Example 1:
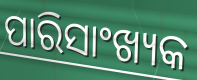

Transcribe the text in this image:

ପାରିସାଂଖ୍ୟକ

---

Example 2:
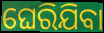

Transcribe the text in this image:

ଘେରିଯିବା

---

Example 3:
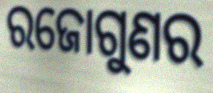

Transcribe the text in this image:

ରଜୋଗୁଣର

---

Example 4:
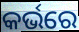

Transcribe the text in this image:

କର୍ଭରେ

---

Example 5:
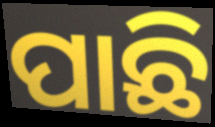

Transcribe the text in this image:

ପାଛି